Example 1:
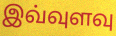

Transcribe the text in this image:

இவ்வுளவு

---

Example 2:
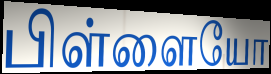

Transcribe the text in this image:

பிள்ளையோ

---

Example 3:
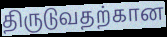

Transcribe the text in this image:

திருடுவதற்கான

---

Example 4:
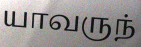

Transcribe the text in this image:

யாவருந்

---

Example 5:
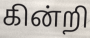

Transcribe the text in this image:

கின்றி